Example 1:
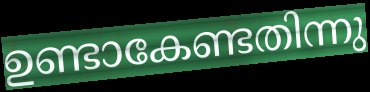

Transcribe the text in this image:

ഉണ്ടാകേണ്ടതിന്നു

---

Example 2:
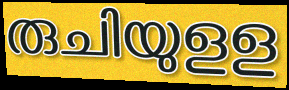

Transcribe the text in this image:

രുചിയുളള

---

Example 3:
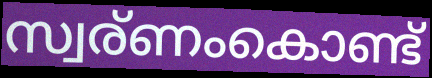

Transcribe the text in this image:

സ്വര്ണംകൊണ്ട്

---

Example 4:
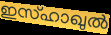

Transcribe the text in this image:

ഇസ്ഹാഖുൽ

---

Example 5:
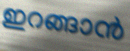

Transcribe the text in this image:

ഇറങ്ങാൻ